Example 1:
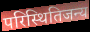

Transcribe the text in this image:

परिस्थितिजन्य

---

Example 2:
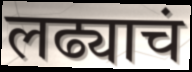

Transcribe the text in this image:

लढ्याचं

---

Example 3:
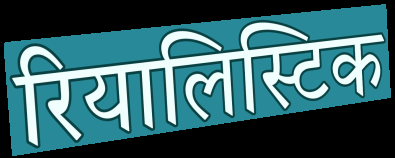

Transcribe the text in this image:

रियालिस्टिक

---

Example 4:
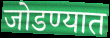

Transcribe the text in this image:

जोडण्यात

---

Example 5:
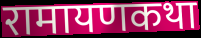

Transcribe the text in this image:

रामायणकथा